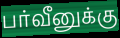
பர்வீனுக்கு